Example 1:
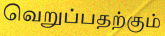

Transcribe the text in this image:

வெறுப்பதற்கும்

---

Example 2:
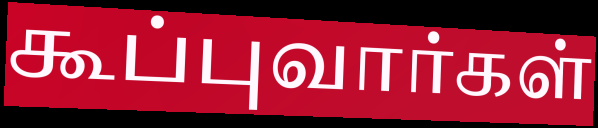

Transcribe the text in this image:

கூப்புவார்கள்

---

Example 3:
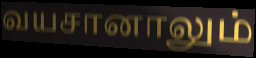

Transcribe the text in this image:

வயசானாலும்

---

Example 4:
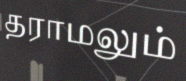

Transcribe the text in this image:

தராமலும்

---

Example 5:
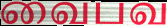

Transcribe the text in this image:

வைபவ